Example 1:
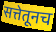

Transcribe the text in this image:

सत्तेतूनच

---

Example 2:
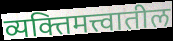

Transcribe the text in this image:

व्यक्तिमत्त्वातील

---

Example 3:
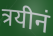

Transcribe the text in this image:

त्रयीनं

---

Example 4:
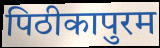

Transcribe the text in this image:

पिठीकापुरम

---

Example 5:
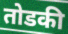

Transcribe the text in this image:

तोडकी